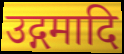
उद्गमादि